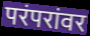
परंपरांवर